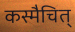
कस्मैचित्